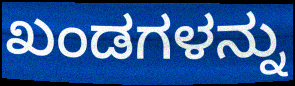
ಖಂಡಗಳನ್ನು